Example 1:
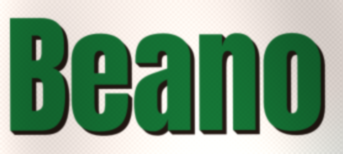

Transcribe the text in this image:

Beano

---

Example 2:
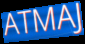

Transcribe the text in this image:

ATMAJ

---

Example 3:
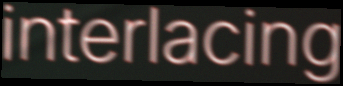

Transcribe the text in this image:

interlacing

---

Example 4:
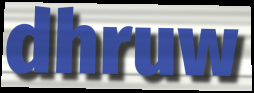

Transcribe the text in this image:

dhruw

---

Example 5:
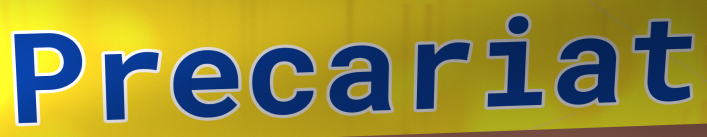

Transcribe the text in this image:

Precariat